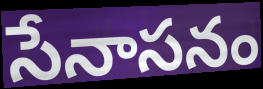
సేనాసనం